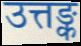
उत्तङ्क